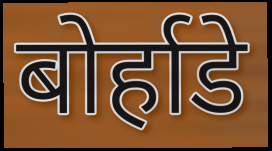
बोर्हाडे